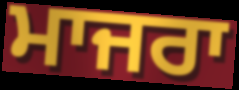
ਮਾਜਰਾ